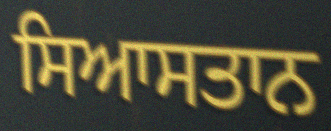
ਸਿਆਸਤਾਨ